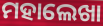
ମହାଲେଖା